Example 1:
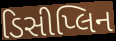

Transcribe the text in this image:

ડિસીપ્લિન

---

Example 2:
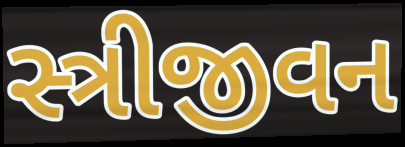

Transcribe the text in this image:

સ્ત્રીજીવન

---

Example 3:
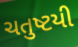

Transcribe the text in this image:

ચતુષ્ટયી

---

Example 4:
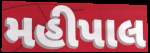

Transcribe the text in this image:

મહીપાલ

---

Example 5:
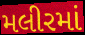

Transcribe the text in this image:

મલીરમાં